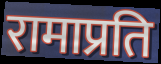
रामाप्रति